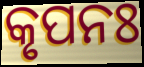
କୃପନଃ